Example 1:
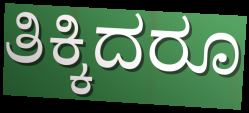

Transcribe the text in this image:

ತಿಕ್ಕಿದರೂ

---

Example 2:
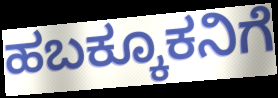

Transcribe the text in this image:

ಹಬಕ್ಕೂಕನಿಗೆ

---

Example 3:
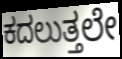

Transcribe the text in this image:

ಕದಲುತ್ತಲೇ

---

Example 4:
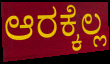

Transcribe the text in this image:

ಆರಕ್ಕೆಲ್ಲ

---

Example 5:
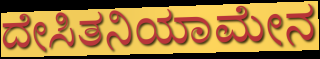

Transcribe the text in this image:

ದೇಸಿತನಿಯಾಮೇನ